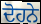
ਦੋਹਨੇ